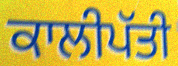
ਕਾਲੀਪੱਤੀ